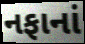
નફાનાં